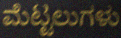
ಮೆಟ್ಟಲುಗಳು